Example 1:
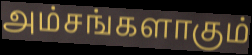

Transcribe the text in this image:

அம்சங்களாகும்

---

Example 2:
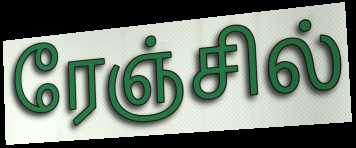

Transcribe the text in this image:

ரேஞ்சில்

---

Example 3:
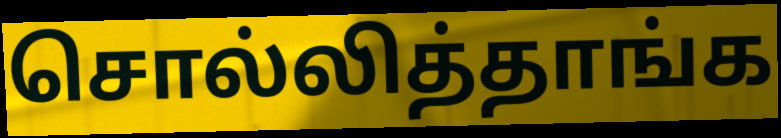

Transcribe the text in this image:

சொல்லித்தாங்க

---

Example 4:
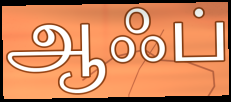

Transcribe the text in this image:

ஆஃப்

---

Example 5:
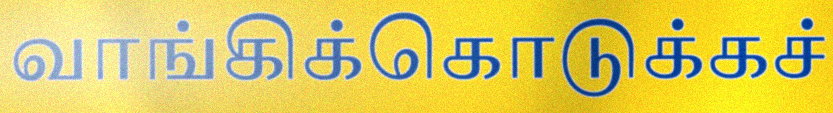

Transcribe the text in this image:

வாங்கிக்கொடுக்கச்